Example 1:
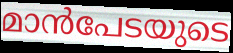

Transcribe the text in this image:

മാൻപേടയുടെ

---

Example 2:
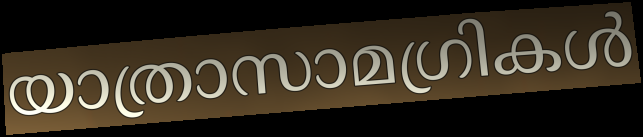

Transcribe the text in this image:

യാത്രാസാമഗ്രികൾ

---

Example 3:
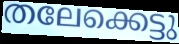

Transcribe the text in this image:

തലേക്കെട്ടു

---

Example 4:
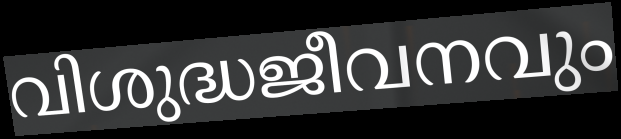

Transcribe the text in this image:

വിശുദ്ധജീവനവും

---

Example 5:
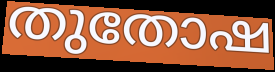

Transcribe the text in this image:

തുതോഷ